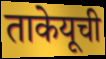
ताकेयूची